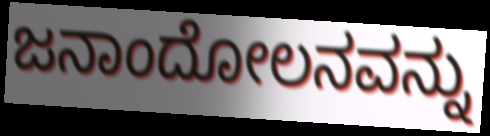
ಜನಾಂದೋಲನವನ್ನು